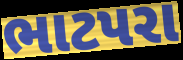
ભાટપરા